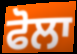
ਫੋਲਾ